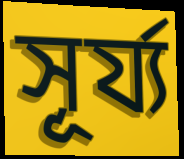
সূর্য্য